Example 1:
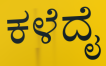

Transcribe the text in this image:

ಕಳೆದೈ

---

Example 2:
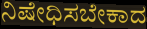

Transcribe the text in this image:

ನಿಷೇಧಿಸಬೇಕಾದ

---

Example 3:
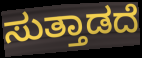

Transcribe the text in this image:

ಸುತ್ತಾಡದೆ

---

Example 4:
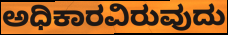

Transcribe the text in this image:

ಅಧಿಕಾರವಿರುವುದು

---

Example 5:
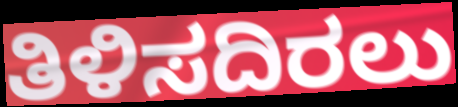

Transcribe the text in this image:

ತಿಳಿಸದಿರಲು